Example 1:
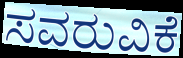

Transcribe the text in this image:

ಸವರುವಿಕೆ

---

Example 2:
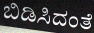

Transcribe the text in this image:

ಬಿಡಿಸಿದಂತೆ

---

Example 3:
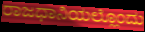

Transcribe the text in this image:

ರಾಜಧಾನಿಯಲ್ಲೊಂದು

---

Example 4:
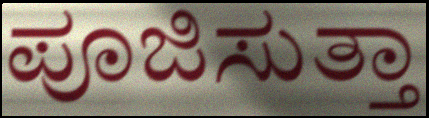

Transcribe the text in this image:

ಪೂಜಿಸುತ್ತಾ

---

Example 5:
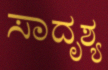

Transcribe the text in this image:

ಸಾದೃಶ್ಯ